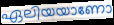
ഏലിയയാണോ